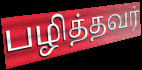
பழித்தவர்